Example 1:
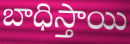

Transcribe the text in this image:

బాధిస్తాయి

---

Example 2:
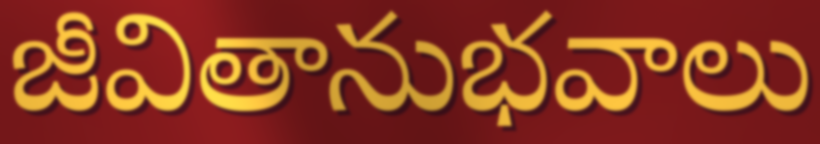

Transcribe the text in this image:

జీవితానుభవాలు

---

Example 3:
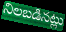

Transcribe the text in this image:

నిలబడినట్లు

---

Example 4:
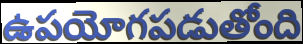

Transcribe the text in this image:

ఉపయోగపడుతోంది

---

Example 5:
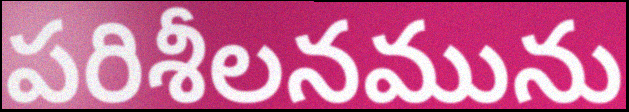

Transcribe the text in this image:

పరిశీలనమును